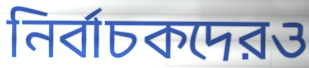
নির্বাচকদেরও